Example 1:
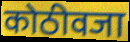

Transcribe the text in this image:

कोठीवजा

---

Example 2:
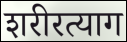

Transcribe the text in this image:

शरीरत्याग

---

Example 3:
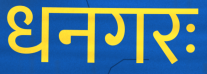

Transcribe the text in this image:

धनगरः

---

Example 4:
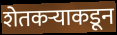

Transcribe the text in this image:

शेतकऱ्याकडून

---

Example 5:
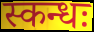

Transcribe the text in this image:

स्कन्धः